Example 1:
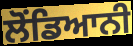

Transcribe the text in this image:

ਲੋਂਡਿਆਨੀ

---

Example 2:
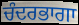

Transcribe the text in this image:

ਚੰਦਰਭਾਗਾ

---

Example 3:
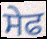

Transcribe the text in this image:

ਸੇਫ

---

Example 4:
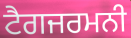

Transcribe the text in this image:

ਟੈਗਜਰਮਨੀ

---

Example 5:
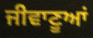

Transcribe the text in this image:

ਜੀਵਾਣੂਆਂ